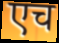
एच